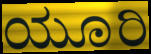
ಯೂರಿ